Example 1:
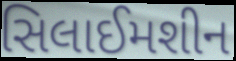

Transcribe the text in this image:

સિલાઈમશીન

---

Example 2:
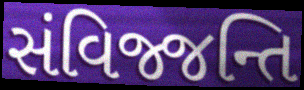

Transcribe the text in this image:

સંવિજ્જન્તિ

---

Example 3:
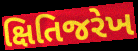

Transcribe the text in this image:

ક્ષિતિજરેખ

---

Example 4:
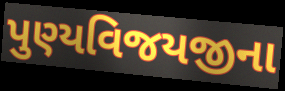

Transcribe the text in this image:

પુણ્યવિજયજીના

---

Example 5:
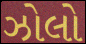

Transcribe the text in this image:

ઝોલો